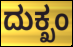
ದುಕ್ಖಂ